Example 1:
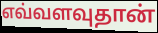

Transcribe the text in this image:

எவ்வளவுதான்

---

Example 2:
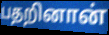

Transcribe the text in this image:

பதறினான்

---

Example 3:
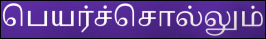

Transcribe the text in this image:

பெயர்ச்சொல்லும்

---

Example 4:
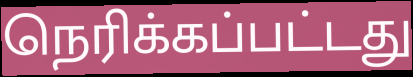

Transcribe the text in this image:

நெரிக்கப்பட்டது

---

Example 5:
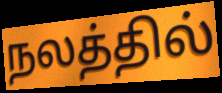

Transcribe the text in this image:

நலத்தில்